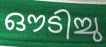
ഔടിച്ചു